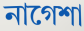
নাগেশা